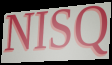
NISQ